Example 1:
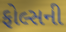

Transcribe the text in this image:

ફોલ્સની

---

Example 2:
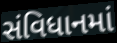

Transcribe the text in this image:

સંવિધાનમાં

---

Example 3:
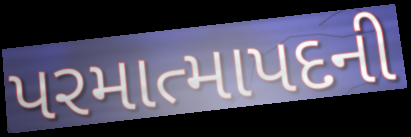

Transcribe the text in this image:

પરમાત્માપદની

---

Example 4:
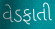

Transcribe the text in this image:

વેડફાતી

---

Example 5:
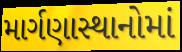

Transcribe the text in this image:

માર્ગણાસ્થાનોમાં